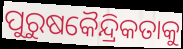
ପୁରୁଷକୈନ୍ଦ୍ରିକତାକୁ